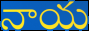
నాయ